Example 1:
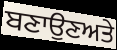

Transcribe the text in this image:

ਬਣਾਉਣਅਤੇ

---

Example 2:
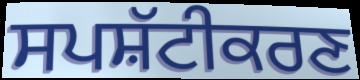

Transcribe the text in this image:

ਸਪਸ਼ੱਟੀਕਰਣ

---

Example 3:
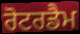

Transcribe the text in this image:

ਰੋਟਰਡੈਮ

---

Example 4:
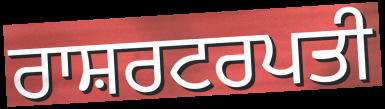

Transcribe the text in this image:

ਰਾਸ਼ਰਟਰਪਤੀ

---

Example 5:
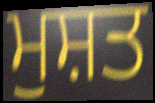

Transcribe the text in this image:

ਮੁਸ਼ਤ